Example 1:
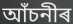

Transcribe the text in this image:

আঁচনীৰ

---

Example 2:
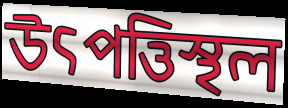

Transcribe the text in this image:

উৎপত্তিস্থল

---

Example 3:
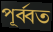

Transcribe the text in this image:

পূৰ্ব্বত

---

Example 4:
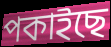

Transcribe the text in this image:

পকাইছে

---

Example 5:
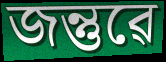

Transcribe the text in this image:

জন্তুৱে